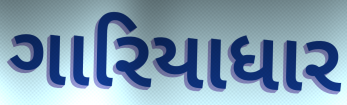
ગારિયાધાર